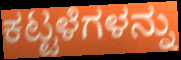
ಕಟ್ಟಳೆಗಳನ್ನು